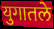
युगातले